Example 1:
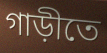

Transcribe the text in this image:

গাড়ীতে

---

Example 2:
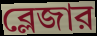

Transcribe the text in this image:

ব্লেজার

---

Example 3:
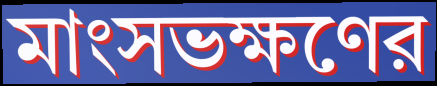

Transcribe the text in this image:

মাংসভক্ষণের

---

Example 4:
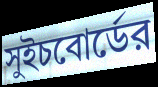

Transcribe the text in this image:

সুইচবোর্ডের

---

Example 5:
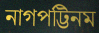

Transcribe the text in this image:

নাগপট্টিনম